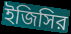
ইজিসির